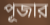
পূজার